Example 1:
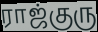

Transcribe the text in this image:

ராஜ்குரு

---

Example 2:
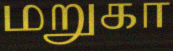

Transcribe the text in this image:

மறுகா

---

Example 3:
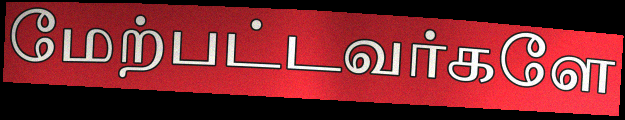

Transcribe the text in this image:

மேற்பட்டவர்களே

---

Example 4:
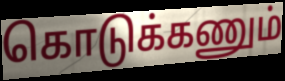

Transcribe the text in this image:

கொடுக்கணும்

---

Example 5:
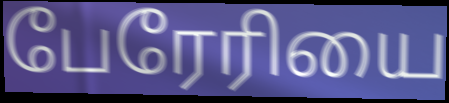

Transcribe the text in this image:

பேரேரியை